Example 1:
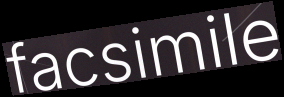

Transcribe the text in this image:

facsimile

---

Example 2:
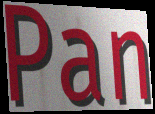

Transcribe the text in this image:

Pan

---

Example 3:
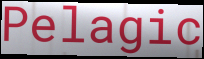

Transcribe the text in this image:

Pelagic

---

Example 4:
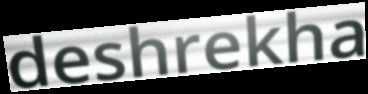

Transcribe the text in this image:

deshrekha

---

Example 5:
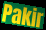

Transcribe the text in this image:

Pakir